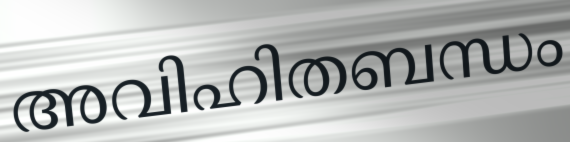
അവിഹിതബന്ധം